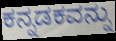
ಕನ್ನಡಕವನ್ನು